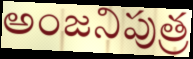
అంజనిపుత్ర